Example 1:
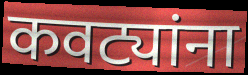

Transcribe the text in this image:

कवट्यांना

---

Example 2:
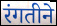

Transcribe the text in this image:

रंगतीने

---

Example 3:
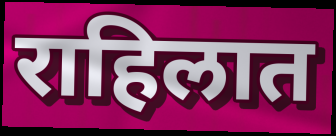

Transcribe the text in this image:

राहिलात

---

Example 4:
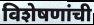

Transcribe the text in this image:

विशेषणांची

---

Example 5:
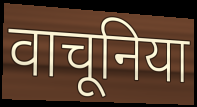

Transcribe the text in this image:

वाचूनिया